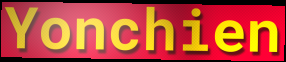
Yonchien